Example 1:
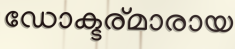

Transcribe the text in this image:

ഡോക്ടര്മാരായ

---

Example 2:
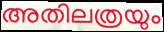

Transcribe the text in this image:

അതിലത്രയും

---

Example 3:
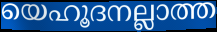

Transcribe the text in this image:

യെഹൂദനല്ലാത്ത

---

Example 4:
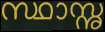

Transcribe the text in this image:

സ്ഥാസ്നു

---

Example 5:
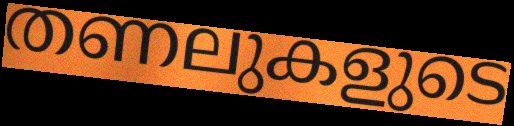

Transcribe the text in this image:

തണലുകളുടെ